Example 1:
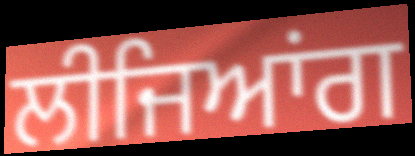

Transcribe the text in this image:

ਲੀਜਿਆਂਗ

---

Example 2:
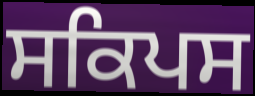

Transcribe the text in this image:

ਸਕਿਪਸ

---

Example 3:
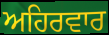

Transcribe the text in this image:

ਅਹਿਰਵਾਰ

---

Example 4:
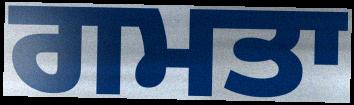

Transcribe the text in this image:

ਗਮਤਾ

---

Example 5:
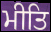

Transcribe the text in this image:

ਮੀਤਿ